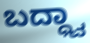
ಬದ್ಧ್ವಾ